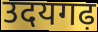
उदयगढ़